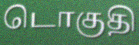
டொகுதி